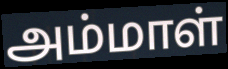
அம்மாள்